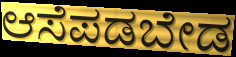
ಆಸೆಪಡಬೇಡ